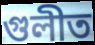
গুলীত